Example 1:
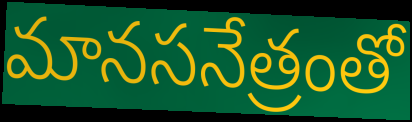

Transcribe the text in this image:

మానసనేత్రంతో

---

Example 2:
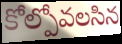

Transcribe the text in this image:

కోల్పోవలసిన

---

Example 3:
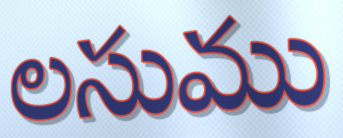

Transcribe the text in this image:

లసుము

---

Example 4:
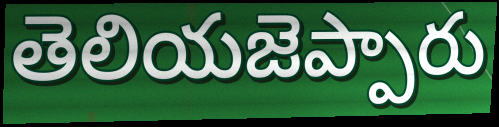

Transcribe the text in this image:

తెలియజెప్పారు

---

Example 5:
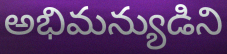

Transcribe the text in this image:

అభిమన్యుడిని